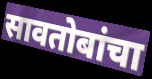
सावतोबांचा